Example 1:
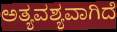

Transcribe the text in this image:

ಅತ್ಯವಶ್ಯವಾಗಿದೆ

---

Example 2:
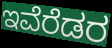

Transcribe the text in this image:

ಇವೆರೆಡರ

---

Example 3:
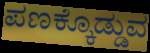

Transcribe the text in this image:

ಪಣಕ್ಕೊಡ್ಡುವ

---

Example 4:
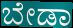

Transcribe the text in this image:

ಬೇಡಾ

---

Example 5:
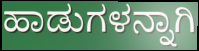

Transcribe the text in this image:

ಹಾಡುಗಳನ್ನಾಗಿ